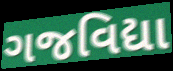
ગજવિદ્યા